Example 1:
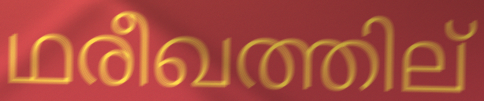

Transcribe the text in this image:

ഥരീഖത്തില്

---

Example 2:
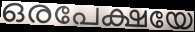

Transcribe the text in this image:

ഒരപേക്ഷയേ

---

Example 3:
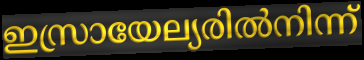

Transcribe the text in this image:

ഇസ്രായേല്യരിൽനിന്ന്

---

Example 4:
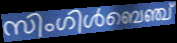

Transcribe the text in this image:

സിംഗിൾബെഞ്ച്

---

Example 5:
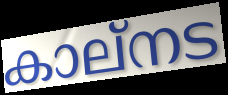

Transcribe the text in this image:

കാല്നട